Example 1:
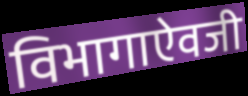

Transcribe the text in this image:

विभागाऐवजी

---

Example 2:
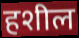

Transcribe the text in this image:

हशील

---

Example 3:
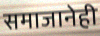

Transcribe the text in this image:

समाजानेही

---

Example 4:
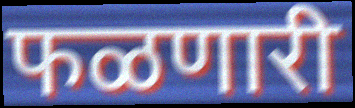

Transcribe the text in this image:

फळणारी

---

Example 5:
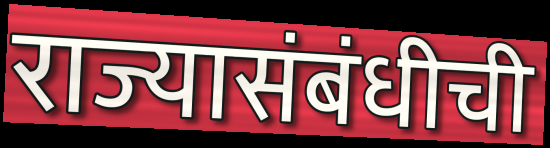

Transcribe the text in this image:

राज्यासंबंधीची